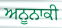
ਅਨੂਨਾਕੀ